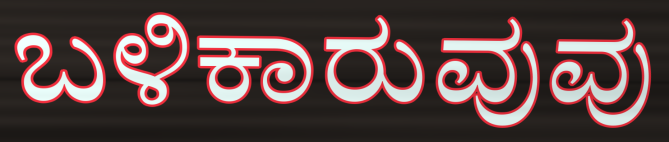
ಬಳಿಕಾರುವುವು